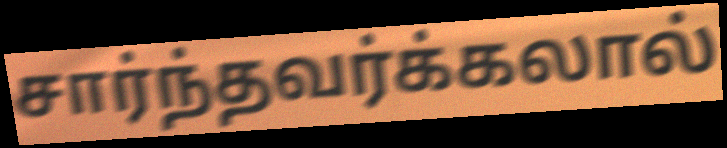
சார்ந்தவர்க்கலால்